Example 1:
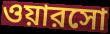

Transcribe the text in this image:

ওয়ারসো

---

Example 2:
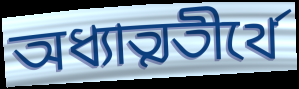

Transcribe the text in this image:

অধ্যাত্মতীর্থে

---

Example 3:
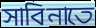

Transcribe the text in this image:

সাবিনাতে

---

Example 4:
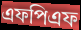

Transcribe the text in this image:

এফপিএফ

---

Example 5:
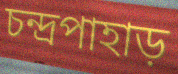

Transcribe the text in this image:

চন্দ্রপাহাড়